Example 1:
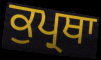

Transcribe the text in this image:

ਕੁਪ੍ਰਥਾ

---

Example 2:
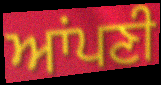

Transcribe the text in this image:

ਆਂਪਣੀ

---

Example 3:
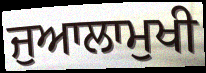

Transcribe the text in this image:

ਜੁਆਲਾਮੁਖੀ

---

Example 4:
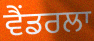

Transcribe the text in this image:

ਵੈਂਡਰਲਾ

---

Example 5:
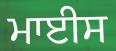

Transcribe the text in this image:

ਮਾਈਸ